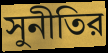
সুনীতির